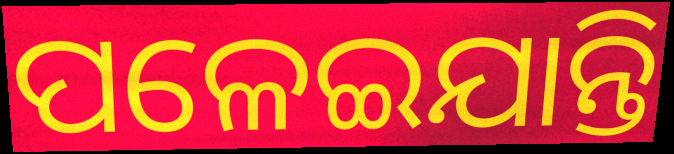
ପଳେଇଯାନ୍ତି